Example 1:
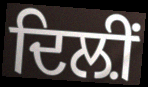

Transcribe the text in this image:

ਦਿਲ਼ੀਂ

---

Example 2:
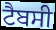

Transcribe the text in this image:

ਟੈਬਸੀ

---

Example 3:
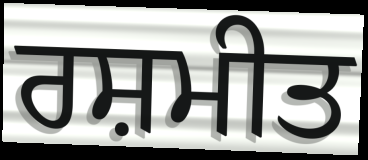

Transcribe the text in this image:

ਰਸ਼ਮੀਤ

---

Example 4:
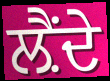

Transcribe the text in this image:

ਲ਼ੈਂਦੇ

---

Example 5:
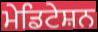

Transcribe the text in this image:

ਮੇਡਿਟੇਸ਼ਨ